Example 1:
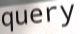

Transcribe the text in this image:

query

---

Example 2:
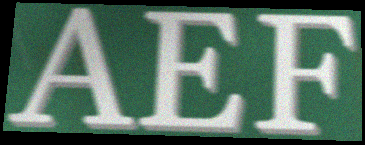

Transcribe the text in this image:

AEF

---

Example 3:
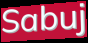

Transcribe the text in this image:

Sabuj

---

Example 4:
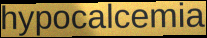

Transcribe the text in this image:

hypocalcemia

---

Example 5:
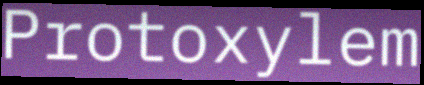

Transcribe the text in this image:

Protoxylem